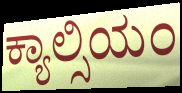
ಕ್ಯಾಲ್ಸಿಯಂ